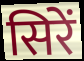
सिरें